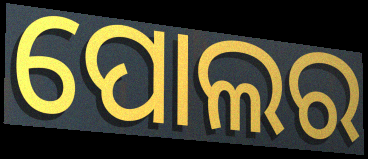
ପୋଲର